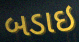
બડાઇ